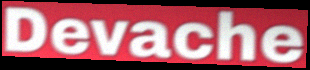
Devache